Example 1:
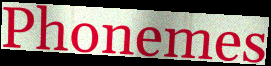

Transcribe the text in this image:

Phonemes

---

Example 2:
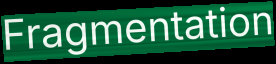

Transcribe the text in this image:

Fragmentation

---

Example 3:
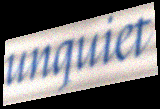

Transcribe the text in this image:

unquiet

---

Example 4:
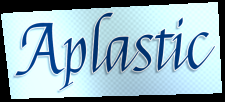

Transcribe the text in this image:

Aplastic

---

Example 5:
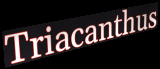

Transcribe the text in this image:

Triacanthus